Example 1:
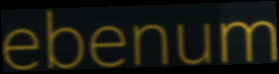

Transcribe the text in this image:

ebenum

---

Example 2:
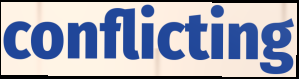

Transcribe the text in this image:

conflicting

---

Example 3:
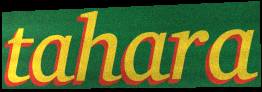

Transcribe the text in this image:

tahara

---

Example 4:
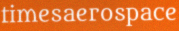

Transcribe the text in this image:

timesaerospace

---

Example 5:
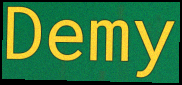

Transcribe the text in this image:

Demy